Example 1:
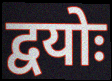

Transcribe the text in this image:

द्वयोः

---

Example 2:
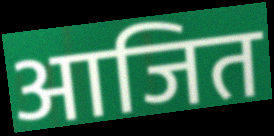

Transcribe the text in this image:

आजित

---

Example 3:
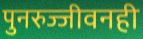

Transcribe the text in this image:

पुनरुज्जीवनही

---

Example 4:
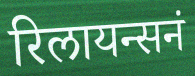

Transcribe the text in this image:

रिलायन्सनं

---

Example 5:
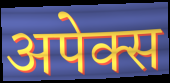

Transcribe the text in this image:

अपेक्स